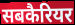
सबकैरियर